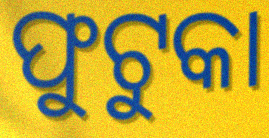
ଫୁଟୁକା